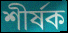
শীৰ্ষক